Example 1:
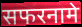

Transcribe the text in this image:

सफरनामे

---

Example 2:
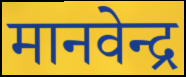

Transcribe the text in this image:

मानवेन्द्र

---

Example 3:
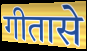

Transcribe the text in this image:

गीतासे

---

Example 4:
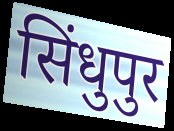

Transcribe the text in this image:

सिंधुपुर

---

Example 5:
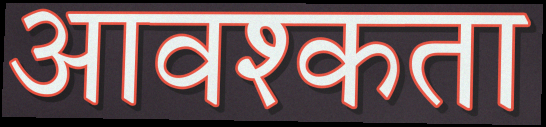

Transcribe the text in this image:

आवश्कता